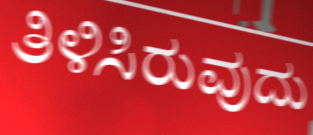
ತಿಳಿಸಿರುವುದು